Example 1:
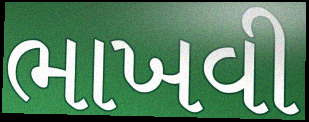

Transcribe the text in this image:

ભાખવી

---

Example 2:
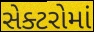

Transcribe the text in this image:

સેક્ટરોમાં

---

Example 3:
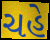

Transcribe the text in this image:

ચહે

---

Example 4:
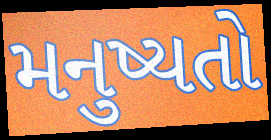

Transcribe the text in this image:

મનુષ્યતો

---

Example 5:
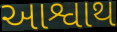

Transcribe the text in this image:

આશ્વાથ